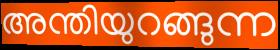
അന്തിയുറങ്ങുന്ന